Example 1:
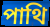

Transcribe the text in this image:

পাথি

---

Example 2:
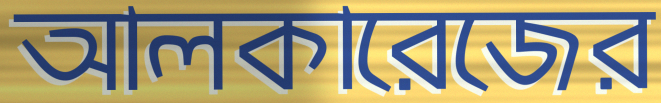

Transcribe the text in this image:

আলকারেজের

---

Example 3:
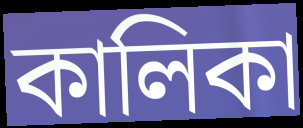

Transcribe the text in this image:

কালিকা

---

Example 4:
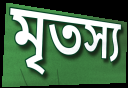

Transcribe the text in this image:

মৃতস্য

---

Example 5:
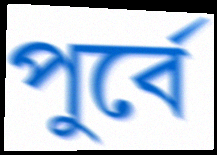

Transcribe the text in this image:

পুর্বে